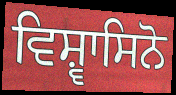
ਵਿਸ਼੍ਵਾਸਿਨੋ